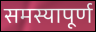
समस्यापूर्ण